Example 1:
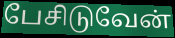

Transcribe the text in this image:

பேசிடுவேன்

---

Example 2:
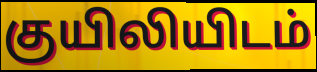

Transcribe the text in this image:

குயிலியிடம்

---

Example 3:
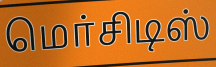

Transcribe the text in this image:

மெர்சிடிஸ்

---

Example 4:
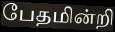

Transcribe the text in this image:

பேதமின்றி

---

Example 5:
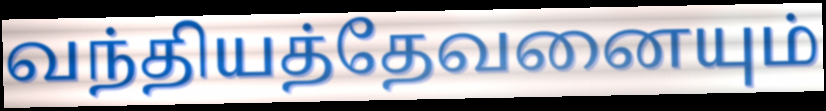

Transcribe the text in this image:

வந்தியத்தேவனையும்